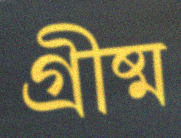
গ্ৰীষ্ম